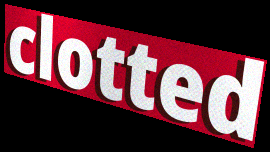
clotted